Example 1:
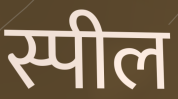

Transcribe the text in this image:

स्पील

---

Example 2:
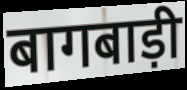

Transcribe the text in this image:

बागबाड़ी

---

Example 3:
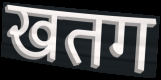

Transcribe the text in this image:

खतग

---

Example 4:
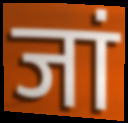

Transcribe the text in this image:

जां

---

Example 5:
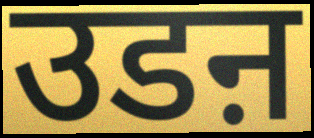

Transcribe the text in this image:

उडऩ